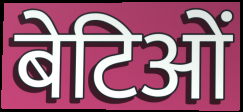
बेटिओं